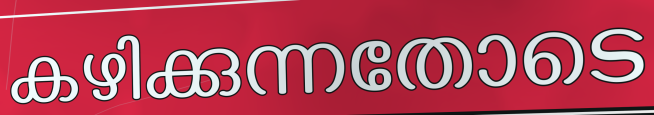
കഴിക്കുന്നതോടെ